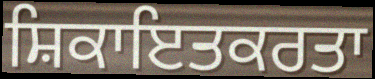
ਸ਼ਿਕਾਇਤਕਰਤਾ